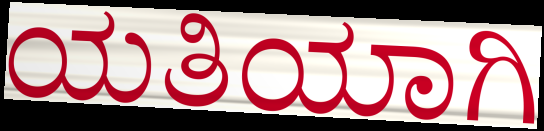
ಯತಿಯಾಗಿ